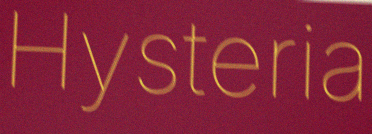
Hysteria